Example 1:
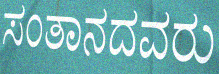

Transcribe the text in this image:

ಸಂತಾನದವರು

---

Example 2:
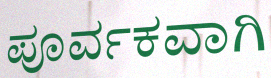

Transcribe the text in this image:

ಪೂರ್ವಕವಾಗಿ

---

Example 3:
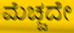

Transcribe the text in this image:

ಮೆಚ್ಚದೇ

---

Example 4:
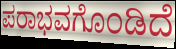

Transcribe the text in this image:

ಪರಾಭವಗೊಂಡಿದೆ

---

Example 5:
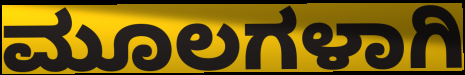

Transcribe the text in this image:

ಮೂಲಗಳಾಗಿ